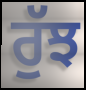
ਰੁੱਝ